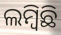
ଲମ୍ବିଛି